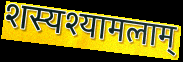
शस्यश्यामलाम्